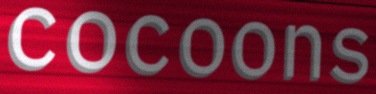
cocoons